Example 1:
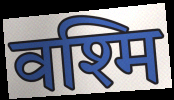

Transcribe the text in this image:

वश्मि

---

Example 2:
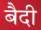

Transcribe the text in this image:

बैदी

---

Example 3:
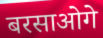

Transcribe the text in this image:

बरसाओगे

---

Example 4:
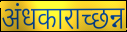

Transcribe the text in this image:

अंधकाराच्छन्न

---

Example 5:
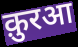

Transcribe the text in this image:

क़ुरआ